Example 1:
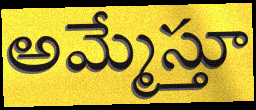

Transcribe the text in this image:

అమ్మేస్తూ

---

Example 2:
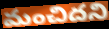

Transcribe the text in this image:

మంచిదని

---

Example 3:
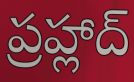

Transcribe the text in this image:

ప్రహ్లాద్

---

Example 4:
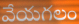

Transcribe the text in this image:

వేయగలం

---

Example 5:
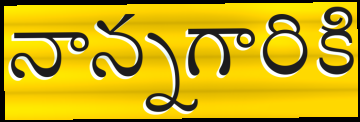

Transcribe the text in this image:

నాన్నగారికి